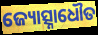
ଜ୍ୟୋତ୍ସ୍ନାଧୌତ